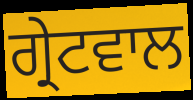
ਗ੍ਰੇਟਵਾਲ